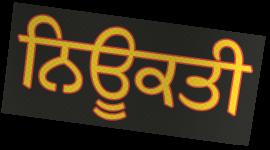
ਨਿਊਕਤੀ